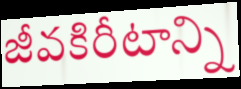
జీవకిరీటాన్ని